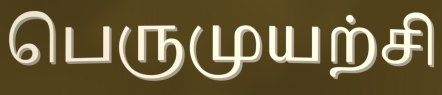
பெருமுயற்சி